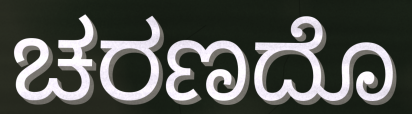
ಚರಣದೊ